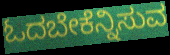
ಓದಬೇಕೆನ್ನಿಸುವ